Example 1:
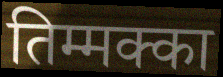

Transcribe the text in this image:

तिम्मक्का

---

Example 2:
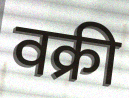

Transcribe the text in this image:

वक्री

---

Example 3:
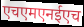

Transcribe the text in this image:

एचएमएनईएच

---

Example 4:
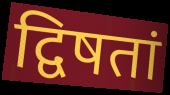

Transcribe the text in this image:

द्विषतां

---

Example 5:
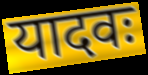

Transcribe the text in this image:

यादवः